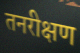
तनरीक्षण